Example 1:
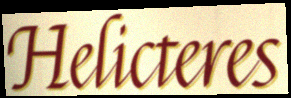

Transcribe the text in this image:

Helicteres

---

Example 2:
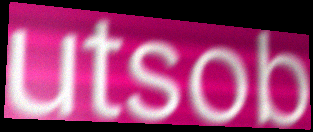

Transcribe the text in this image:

utsob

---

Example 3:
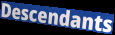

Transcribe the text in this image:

Descendants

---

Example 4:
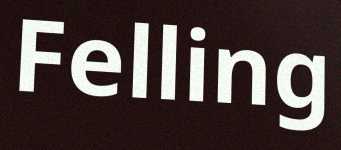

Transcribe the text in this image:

Felling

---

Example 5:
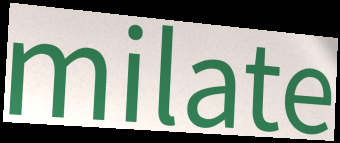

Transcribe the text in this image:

milate